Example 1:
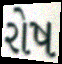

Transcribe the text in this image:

રોષ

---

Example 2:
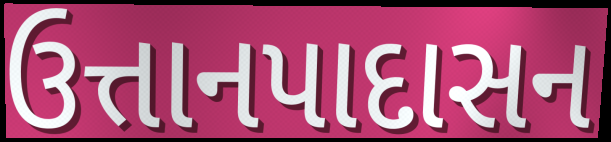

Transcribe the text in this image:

ઉત્તાનપાદાસન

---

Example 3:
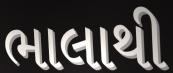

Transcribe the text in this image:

ભાલાથી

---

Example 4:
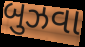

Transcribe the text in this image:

બુઝવા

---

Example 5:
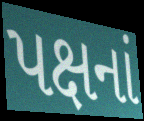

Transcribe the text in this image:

પક્ષનાં